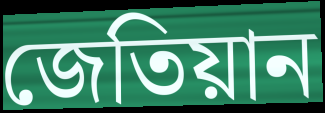
জেতিয়ান